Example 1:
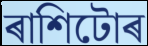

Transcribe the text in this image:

ৰাশিটোৰ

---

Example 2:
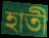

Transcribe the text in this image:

হাতী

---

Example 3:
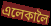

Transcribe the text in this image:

এলেকালৈ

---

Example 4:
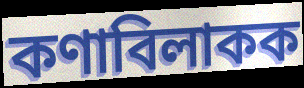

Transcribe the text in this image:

কণাবিলাকক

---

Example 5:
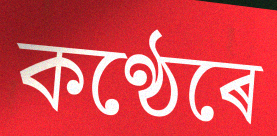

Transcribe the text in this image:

কণ্ঠেৰে